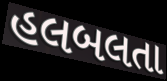
હલબલતા